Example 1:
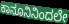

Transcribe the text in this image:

ಕಾನೂನಿನಿಂದಲೇ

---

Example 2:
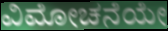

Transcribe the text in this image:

ವಿಮೋಚನೆಯೇ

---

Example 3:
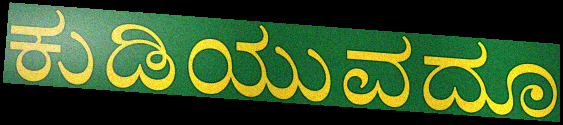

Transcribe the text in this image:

ಕುಡಿಯುವದೂ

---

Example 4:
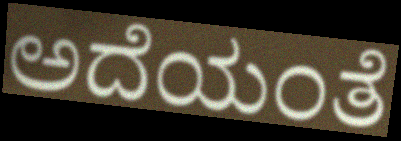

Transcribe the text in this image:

ಅದೆಯಂತೆ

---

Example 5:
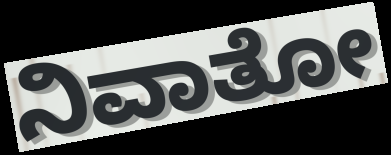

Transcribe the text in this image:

ನಿವಾತೋ